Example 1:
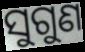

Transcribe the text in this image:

ସୁଗୁଣ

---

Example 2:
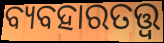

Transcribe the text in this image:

ବ୍ୟବହାରତତ୍ତ୍ବ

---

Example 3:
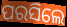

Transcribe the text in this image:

ପରସିଲେ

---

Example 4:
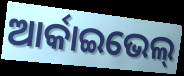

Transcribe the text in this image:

ଆର୍କାଇଭେଲ୍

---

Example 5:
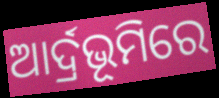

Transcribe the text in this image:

ଆର୍ଦ୍ରଭୂମିରେ